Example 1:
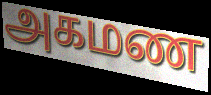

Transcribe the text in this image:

அகமண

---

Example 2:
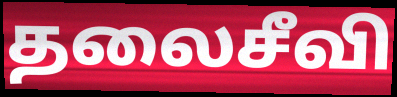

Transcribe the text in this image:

தலைசீவி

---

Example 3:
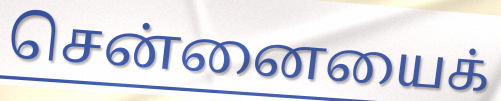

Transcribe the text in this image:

சென்னையைக்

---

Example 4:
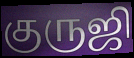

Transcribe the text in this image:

குருஜி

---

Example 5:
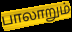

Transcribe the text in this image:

பாலாறும்